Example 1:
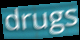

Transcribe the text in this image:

drugs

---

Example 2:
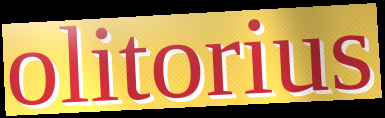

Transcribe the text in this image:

olitorius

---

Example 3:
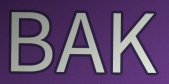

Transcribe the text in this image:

BAK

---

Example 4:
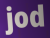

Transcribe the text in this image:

jod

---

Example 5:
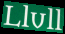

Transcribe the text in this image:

Llull